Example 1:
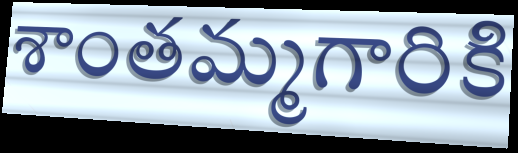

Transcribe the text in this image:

శాంతమ్మగారికి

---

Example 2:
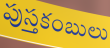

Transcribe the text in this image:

పుస్తకంబులు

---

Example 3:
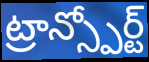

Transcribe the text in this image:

ట్రాన్స్పోర్ట్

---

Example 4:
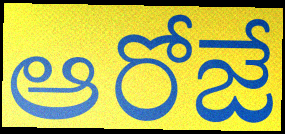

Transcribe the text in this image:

ఆరోజే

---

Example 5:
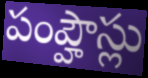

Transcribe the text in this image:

పంప్హౌస్లు